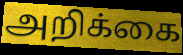
அறிக்கை